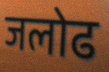
जलोढ